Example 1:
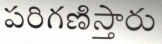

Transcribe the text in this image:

పరిగణిస్తారు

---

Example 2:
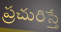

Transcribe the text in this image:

ప్రచురిస్తే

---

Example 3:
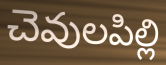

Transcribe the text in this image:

చెవులపిల్లి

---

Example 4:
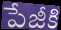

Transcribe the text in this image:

పేజీకి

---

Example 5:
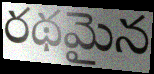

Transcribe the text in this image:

రథమైన